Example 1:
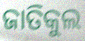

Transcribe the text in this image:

ଜାତିକୁଲ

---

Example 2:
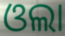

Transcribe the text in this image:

ଓଲା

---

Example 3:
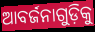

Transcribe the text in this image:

ଆବର୍ଜନାଗୁଡ଼ିକୁ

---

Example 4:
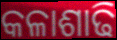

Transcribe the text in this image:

କଳାଶାଢି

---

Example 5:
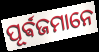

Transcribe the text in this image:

ପୂର୍ଵଜମାନେ